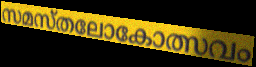
സമസ്തലോകോത്സവം